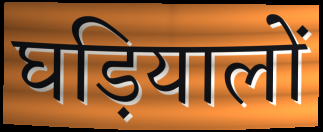
घड़ियालों